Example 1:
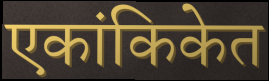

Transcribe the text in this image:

एकांकिकेत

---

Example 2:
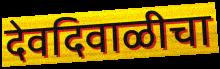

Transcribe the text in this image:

देवदिवाळीचा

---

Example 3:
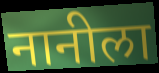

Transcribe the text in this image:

नानीला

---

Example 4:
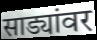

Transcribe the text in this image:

साड्यांवर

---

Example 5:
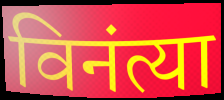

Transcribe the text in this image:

विनंत्या